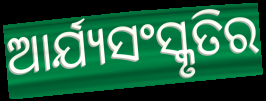
ଆର୍ଯ୍ୟସଂସ୍କୃତିର